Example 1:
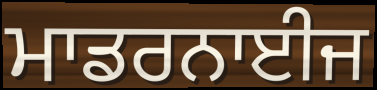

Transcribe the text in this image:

ਮਾਡਰਨਾਈਜ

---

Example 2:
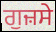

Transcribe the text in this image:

ਗੁਜ਼ਸੇ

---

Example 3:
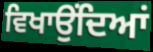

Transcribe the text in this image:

ਵਿਖਾਉਂਦਿਆਂ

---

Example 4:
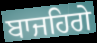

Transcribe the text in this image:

ਬਾਜਹਿਗੇ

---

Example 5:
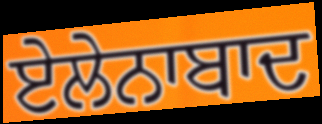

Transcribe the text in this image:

ਏਲੇਨਾਬਾਦ